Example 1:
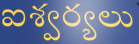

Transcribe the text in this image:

ఐశ్వర్యలు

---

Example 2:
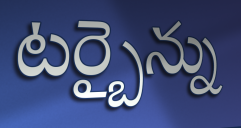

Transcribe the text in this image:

టర్బైన్ను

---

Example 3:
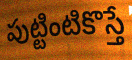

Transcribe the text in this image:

పుట్టింటికొస్తే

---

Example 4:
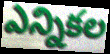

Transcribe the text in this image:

ఎన్నికల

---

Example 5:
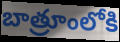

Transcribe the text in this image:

బాత్రూంలోకి